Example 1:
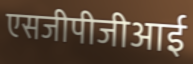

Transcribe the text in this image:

एसजीपीजीआई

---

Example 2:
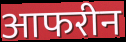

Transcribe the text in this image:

आफरीन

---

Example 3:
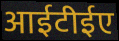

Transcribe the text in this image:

आईटीईए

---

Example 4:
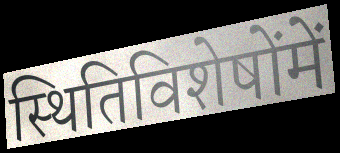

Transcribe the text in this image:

स्थितिविशेषोंमें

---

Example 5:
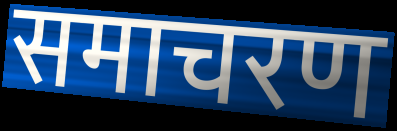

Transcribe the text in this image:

समाचरण